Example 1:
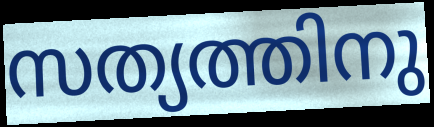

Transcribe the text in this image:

സത്യത്തിനു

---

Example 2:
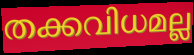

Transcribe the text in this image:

തക്കവിധമല്ല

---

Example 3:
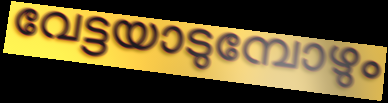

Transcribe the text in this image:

വേട്ടയാടുമ്പോഴും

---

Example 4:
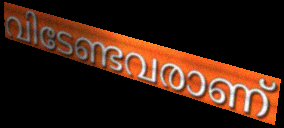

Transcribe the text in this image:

വിടേണ്ടവരാണ്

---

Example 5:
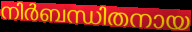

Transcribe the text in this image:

നിർബന്ധിതനായ